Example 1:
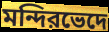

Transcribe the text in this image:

মন্দিরভেদে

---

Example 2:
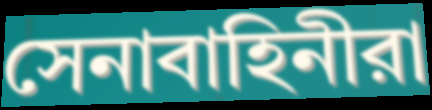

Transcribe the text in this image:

সেনাবাহিনীরা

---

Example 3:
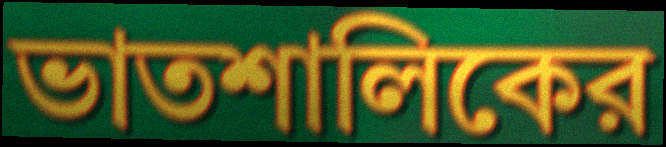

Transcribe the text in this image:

ভাতশালিকের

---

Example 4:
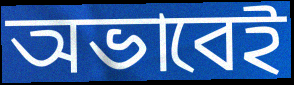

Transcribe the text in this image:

অভাবেই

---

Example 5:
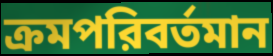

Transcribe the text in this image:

ক্রমপরিবর্তমান